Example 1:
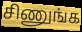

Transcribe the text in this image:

சிணுங்க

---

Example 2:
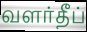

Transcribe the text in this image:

வளர்தீப்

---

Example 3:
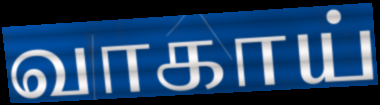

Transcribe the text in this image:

வாகாய்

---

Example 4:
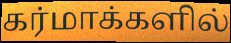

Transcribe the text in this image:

கர்மாக்களில்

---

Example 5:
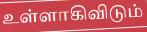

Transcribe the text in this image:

உள்ளாகிவிடும்